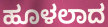
ಹೂಳಲಾದ